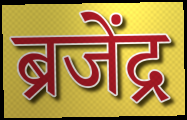
ब्रजेंद्र